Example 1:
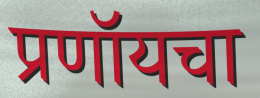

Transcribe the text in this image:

प्रणॉयचा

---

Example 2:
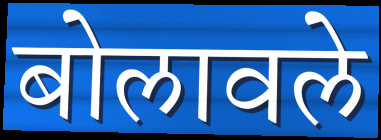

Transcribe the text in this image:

बोलावले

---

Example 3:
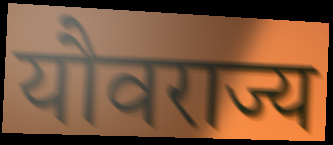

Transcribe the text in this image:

यौवराज्य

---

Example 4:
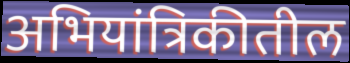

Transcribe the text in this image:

अभियांत्रिकीतील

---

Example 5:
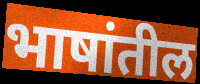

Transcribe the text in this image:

भाषांतील